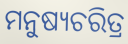
ମନୁଷ୍ୟଚରିତ୍ର